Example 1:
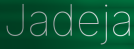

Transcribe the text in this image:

Jadeja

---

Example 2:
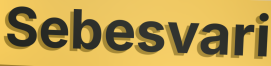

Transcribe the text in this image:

Sebesvari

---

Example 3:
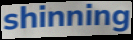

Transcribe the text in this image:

shinning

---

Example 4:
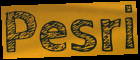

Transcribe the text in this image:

Pesri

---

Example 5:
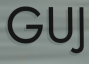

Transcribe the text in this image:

GUJ